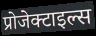
प्रोजेक्टाइल्स